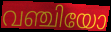
വഞ്ചിയോ